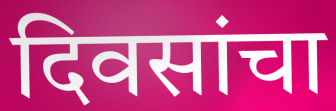
दिवसांचा